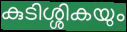
കുടിശ്ശികയും